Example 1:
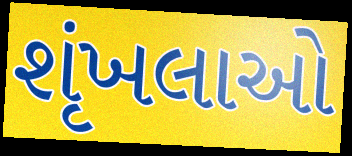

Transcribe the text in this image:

શૃંખલાઓ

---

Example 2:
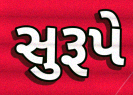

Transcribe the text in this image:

સુરૂપે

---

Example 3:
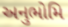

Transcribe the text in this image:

અનુભોમિ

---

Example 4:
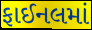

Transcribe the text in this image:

ફાઈનલમાં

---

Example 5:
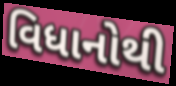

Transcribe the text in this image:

વિધાનોથી